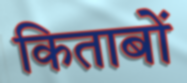
किताबों